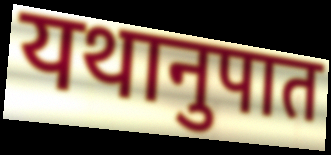
यथानुपात